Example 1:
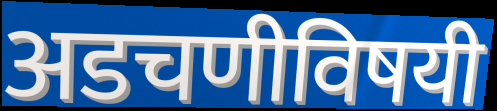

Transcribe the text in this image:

अडचणीविषयी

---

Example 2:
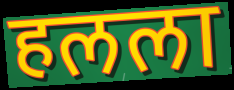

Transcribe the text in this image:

हलला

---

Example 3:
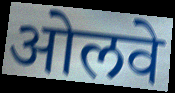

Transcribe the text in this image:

ओलवे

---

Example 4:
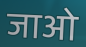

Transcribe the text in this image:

जाओ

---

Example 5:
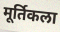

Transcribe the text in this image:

मूर्तिकला